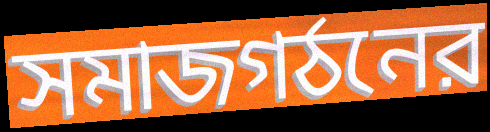
সমাজগঠনের